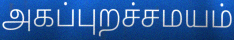
அகப்புறச்சமயம்